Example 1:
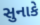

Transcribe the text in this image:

સુનાકે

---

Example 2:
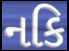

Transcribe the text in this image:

નકિ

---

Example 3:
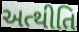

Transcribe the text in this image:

અત્થીતિ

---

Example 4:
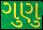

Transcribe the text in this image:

ગુણુ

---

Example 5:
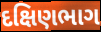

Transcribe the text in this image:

દક્ષિણભાગ